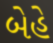
બેહે